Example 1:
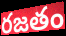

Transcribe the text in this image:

రజతం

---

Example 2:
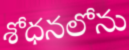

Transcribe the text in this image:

శోధనలోను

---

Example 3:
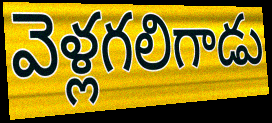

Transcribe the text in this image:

వెళ్లగలిగాడు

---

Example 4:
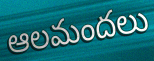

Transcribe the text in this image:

ఆలమందలు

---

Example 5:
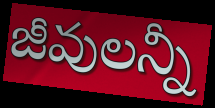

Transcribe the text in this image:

జీవులన్నీ